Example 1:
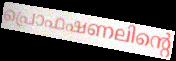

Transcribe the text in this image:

പ്രൊഫഷണലിന്റെ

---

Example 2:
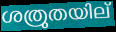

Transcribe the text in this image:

ശത്രുതയില്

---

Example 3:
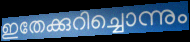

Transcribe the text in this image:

ഇതേക്കുറിച്ചൊന്നും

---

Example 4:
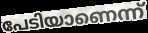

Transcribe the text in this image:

പേടിയാണെന്ന്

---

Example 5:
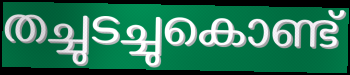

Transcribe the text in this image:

തച്ചുടച്ചുകൊണ്ട്